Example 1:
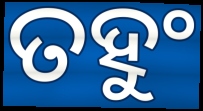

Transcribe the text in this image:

ତହୁଂ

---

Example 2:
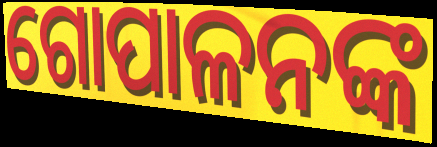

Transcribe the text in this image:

ଗୋପାଳନଙ୍କ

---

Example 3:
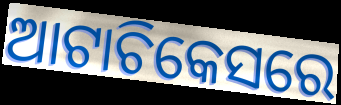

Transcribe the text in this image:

ଆଟାଚିକେସରେ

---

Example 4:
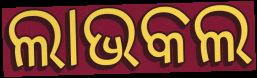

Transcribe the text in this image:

ଲାଭକଲ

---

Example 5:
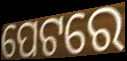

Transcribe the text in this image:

ପେଟରେ